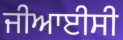
ਜੀਆਈਸੀ